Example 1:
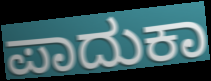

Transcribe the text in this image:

ಪಾದುಕಾ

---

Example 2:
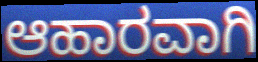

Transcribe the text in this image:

ಆಹಾರವಾಗಿ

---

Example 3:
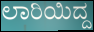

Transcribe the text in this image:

ಲಾರಿಯಿದ್ದ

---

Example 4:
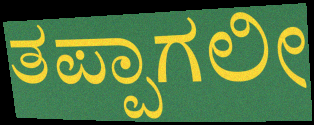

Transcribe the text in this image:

ತಪ್ಪಾಗಲೀ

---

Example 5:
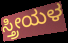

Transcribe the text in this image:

ಸ್ತ್ರೀಯಳ